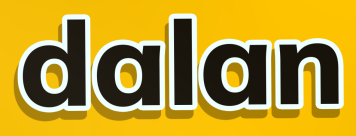
dalan